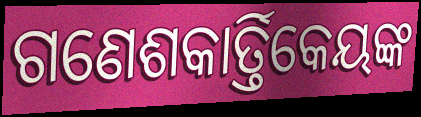
ଗଣେଶକାର୍ତ୍ତିକେୟଙ୍କ